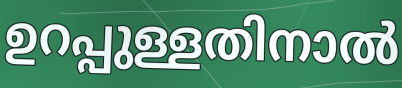
ഉറപ്പുള്ളതിനാൽ